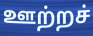
ஊற்றச்